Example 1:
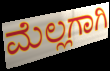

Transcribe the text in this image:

ಮೆಲ್ಲಗಾಗಿ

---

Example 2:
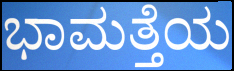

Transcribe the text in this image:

ಭಾಮತ್ತೆಯ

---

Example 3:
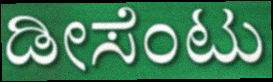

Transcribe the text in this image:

ಡೀಸೆಂಟು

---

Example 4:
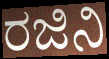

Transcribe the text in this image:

ರಜಿನಿ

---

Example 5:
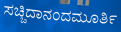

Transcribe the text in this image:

ಸಚ್ಚಿದಾನಂದಮೂರ್ತಿ